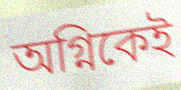
অগ্নিকেই